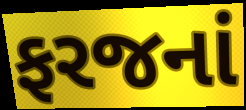
ફરજનાં